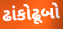
ઢાંકોઢૂબો